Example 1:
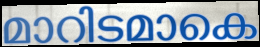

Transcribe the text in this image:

മാറിടമാകെ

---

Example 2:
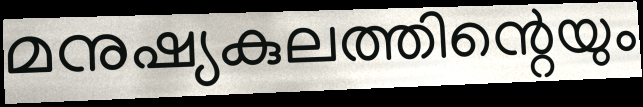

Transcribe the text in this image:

മനുഷ്യകുലത്തിന്റെയും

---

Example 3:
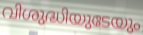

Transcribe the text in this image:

വിശുദ്ധിയുടേയും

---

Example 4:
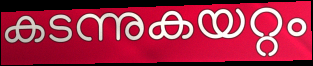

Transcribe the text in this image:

കടന്നുകയറ്റം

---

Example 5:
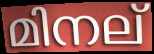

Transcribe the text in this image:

മിനല്